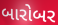
બારોબર